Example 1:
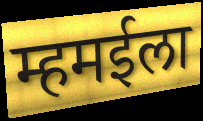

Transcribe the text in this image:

म्हमईला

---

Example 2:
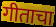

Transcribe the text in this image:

गीताचा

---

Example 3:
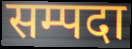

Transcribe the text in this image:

सम्पदा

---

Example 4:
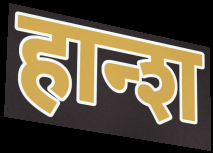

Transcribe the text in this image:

हान्श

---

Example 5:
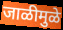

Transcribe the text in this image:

जाळीमुळे